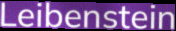
Leibenstein